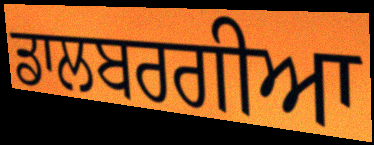
ਡਾਲਬਰਗੀਆ